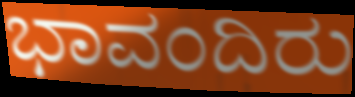
ಭಾವಂದಿರು